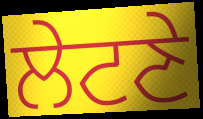
ਲੇਟਣੇ